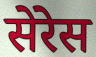
सेरेस